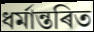
ধৰ্মান্তৰিত